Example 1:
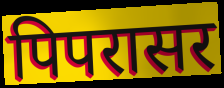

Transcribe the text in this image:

पिपरासर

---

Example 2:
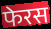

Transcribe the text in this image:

फेरस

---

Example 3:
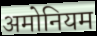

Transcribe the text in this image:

अमोनियम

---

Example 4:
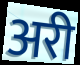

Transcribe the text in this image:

अरी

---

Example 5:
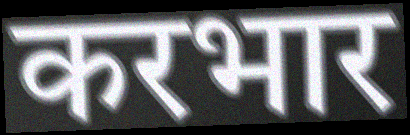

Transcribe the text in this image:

करभार